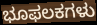
ಭೂಫಲಕಗಳು